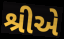
શ્રીએ